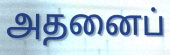
அதனைப்